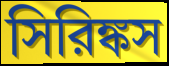
সিরিঙ্কস